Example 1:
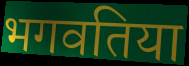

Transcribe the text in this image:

भगवतिया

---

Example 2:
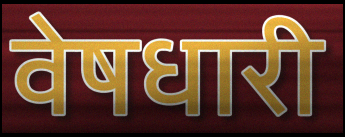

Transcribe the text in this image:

वेषधारी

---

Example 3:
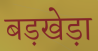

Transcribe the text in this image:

बड़खेड़ा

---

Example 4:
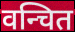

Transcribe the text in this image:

वन्चित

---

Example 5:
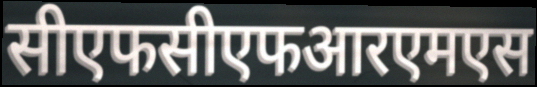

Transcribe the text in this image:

सीएफसीएफआरएमएस